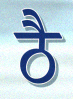
ठै